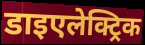
डाइएलेक्ट्रिक